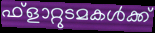
ഫ്ളാറ്റുടമകൾക്ക്